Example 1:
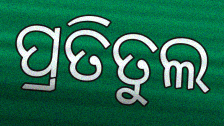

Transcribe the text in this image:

ପ୍ରତିତୁଲ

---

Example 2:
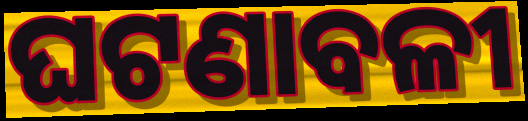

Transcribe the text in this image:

ଘଟଣାବଳୀ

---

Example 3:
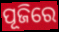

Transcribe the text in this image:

ପୂଜିରେ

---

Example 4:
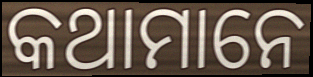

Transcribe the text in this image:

କଥାମାନେ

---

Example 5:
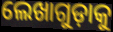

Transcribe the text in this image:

ଲେଖାଗୁଡ଼ାକୁ